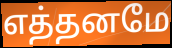
எத்தனமே